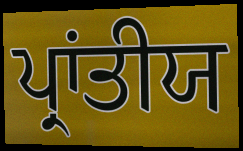
ਪ੍ਰਾਂਤੀਯ